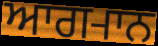
ਆਗ੍ਮਾਨ